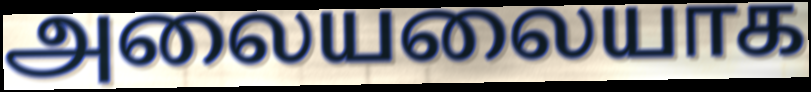
அலையலையாக